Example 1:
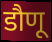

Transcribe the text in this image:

डौणू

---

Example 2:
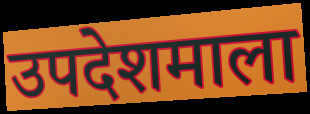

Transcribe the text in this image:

उपदेशमाला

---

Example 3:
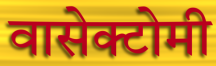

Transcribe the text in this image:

वासेक्टोमी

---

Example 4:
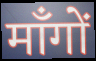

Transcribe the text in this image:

माँगों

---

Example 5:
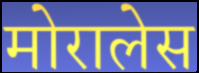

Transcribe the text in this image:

मोरालेस